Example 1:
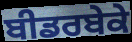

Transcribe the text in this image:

ਬੀਡਰਬੇਕੇ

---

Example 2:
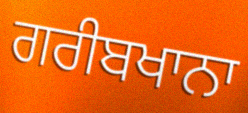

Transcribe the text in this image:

ਗਰੀਬਖਾਨਾ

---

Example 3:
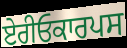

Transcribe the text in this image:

ਏਰੀਓਕਾਰਪਸ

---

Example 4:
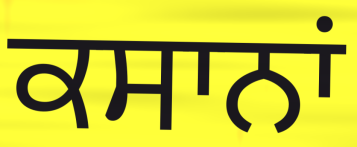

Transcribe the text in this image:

ਕਸਾਨਾਂ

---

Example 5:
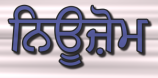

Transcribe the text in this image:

ਨਿਊਜ਼ੋਮ